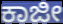
ಕಾಜೀ